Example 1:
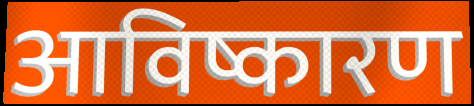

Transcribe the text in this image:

आविष्कारण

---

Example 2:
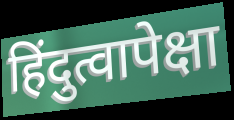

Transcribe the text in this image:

हिंदुत्वापेक्षा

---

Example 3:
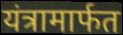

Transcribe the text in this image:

यंत्रामार्फत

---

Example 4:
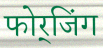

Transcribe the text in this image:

फोर्जिंग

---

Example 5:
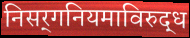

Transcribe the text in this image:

निसर्गनियमाविरुद्ध